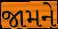
જામને